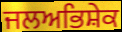
ਜਲਅਭਿਸ਼ੇਕ